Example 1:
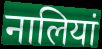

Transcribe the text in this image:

नालियां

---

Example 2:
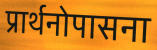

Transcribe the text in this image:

प्रार्थनोपासना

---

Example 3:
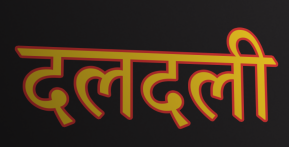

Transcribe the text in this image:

दलदली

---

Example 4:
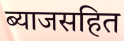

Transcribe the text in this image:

ब्याजसहित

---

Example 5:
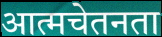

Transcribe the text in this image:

आत्मचेतनता